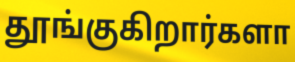
தூங்குகிறார்களா